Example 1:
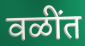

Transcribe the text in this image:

वळींत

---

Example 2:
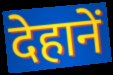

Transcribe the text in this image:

देहानें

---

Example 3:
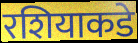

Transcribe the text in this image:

रशियाकडे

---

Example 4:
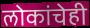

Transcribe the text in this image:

लोकांचेही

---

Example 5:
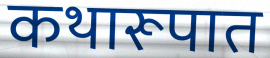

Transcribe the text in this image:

कथारूपात